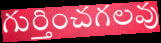
గుర్తించగలవు